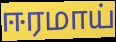
ஈரமாய்